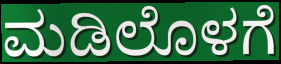
ಮಡಿಲೊಳಗೆ